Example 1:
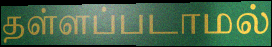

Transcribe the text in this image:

தள்ளப்படாமல்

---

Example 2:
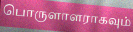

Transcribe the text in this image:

பொருளாளராகவும்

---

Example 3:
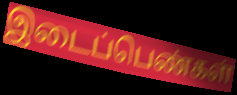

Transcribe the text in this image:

இடைப்பெண்கள்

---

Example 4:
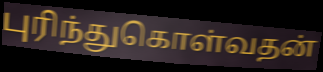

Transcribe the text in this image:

புரிந்துகொள்வதன்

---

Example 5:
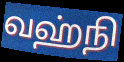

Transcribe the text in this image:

வஹ்நி